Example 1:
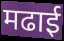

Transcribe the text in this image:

मढाई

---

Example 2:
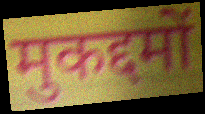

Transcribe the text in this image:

मुकद्दमों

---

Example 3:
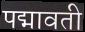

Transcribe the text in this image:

पद्मावती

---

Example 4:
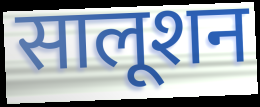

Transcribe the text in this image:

सालूशन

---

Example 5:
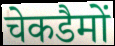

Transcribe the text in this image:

चेकडैमों